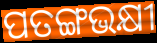
ପତଙ୍ଗଭକ୍ଷୀ